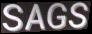
SAGS